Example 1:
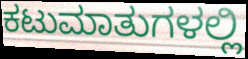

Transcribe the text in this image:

ಕಟುಮಾತುಗಳಲ್ಲಿ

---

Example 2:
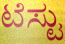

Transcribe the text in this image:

ಟೆಸ್ಟು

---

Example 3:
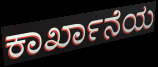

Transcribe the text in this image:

ಕಾರ್ಖಾನೆಯ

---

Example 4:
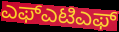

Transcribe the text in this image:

ಎಫ್ಎಟಿಎಫ್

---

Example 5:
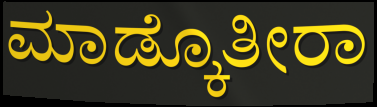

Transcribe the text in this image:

ಮಾಡ್ಕೊತೀರಾ